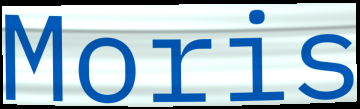
Moris